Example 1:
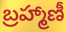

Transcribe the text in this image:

బ్రహ్మాణీ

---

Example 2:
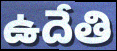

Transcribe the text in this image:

ఉదేతి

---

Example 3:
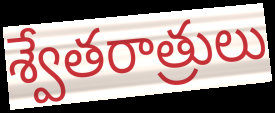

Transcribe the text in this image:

శ్వేతరాత్రులు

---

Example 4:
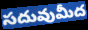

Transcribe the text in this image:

సదువుమీద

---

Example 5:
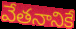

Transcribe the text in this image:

వేతనానికే